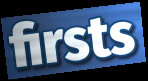
firsts